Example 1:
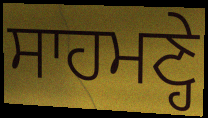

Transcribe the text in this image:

ਸਾਹਮਣ੍ਹੇ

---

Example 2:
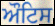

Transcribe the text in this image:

ਔਟਿਸ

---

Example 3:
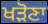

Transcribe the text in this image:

ਖੜੋਣਾ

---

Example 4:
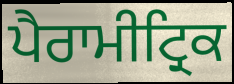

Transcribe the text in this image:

ਪੈਰਾਮੀਟ੍ਰਿਕ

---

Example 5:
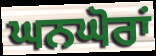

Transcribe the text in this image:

ਘਨਘੋਰਾਂ